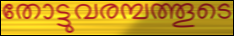
തോട്ടുവരമ്പത്തൂടെ